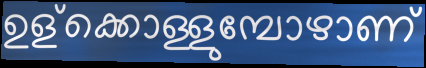
ഉള്ക്കൊള്ളുമ്പോഴാണ്